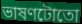
ভাষণটোতো